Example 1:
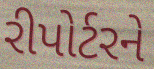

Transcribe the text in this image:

રીપોર્ટરને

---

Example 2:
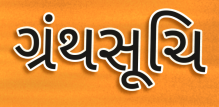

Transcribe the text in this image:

ગ્રંથસૂચિ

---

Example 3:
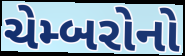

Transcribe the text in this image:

ચેમ્બરોનો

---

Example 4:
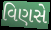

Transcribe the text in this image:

વિણસે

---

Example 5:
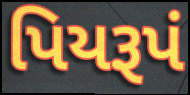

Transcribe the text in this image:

પિયરૂપં